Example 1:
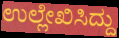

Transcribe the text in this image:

ಉಲ್ಲೇಖಿಸಿದ್ದು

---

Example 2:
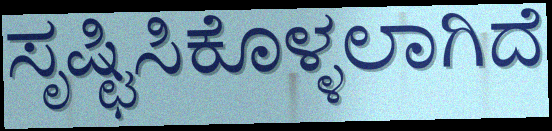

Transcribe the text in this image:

ಸೃಷ್ಟಿಸಿಕೊಳ್ಳಲಾಗಿದೆ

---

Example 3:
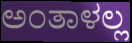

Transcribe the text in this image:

ಅಂತಾಳಲ್ಲ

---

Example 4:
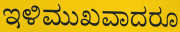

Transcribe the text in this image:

ಇಳಿಮುಖವಾದರೂ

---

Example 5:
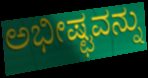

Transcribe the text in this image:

ಅಭೀಷ್ಟವನ್ನು